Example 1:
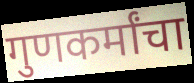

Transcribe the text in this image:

गुणकर्मांचा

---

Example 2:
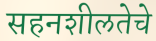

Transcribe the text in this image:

सहनशीलतेचे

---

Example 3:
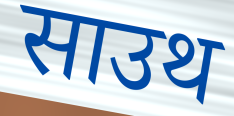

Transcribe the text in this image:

साउथ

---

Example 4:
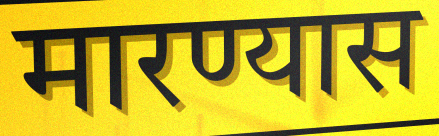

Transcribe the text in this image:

मारण्यास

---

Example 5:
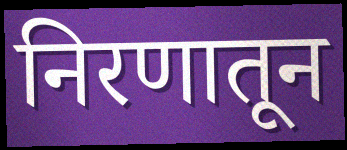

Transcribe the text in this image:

निरणातून